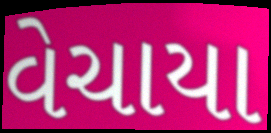
વેચાયા